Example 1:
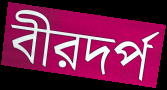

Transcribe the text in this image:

বীরদর্প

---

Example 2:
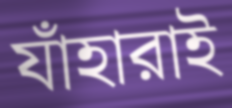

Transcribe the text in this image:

যাঁহারাই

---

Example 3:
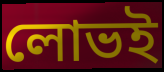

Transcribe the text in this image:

লোভই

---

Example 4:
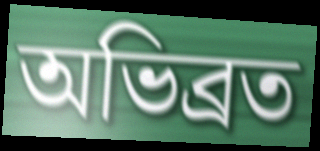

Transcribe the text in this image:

অভিব্রত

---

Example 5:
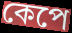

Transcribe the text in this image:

কেপে